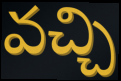
వచ్చి